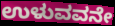
ಉಳುವವನೇ